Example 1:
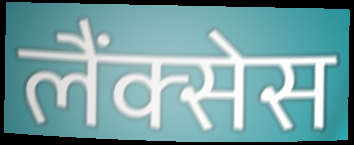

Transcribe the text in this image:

लैंक्‍सेस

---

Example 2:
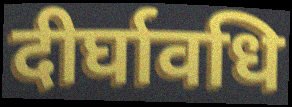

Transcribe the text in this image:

दीर्घावधि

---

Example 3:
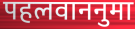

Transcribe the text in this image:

पहलवाननुमा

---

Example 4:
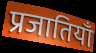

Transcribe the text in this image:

प्रजातियाँ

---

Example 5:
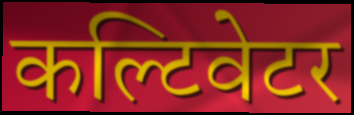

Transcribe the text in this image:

कल्टिवेटर